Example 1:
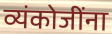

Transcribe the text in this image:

व्यंकोजींना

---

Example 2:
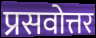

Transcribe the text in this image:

प्रसवोत्तर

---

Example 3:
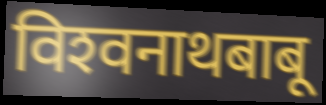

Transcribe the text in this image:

विश्‍वनाथबाबू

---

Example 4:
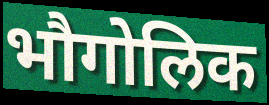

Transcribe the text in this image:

भौगोलिक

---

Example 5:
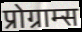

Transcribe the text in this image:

प्रोग्राम्स